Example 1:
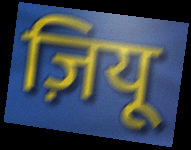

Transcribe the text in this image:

ज़ियू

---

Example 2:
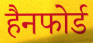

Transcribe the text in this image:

हैनफोर्ड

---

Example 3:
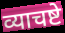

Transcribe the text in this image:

व्याचष्टे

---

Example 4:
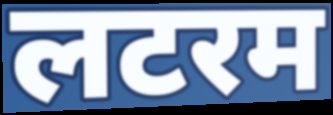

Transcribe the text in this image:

लटरम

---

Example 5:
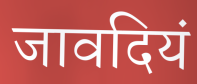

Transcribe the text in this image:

जावदियं